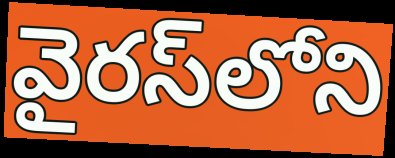
వైరస్‌లోని